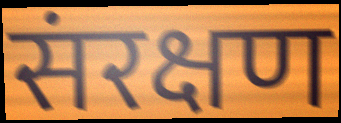
संरक्षण